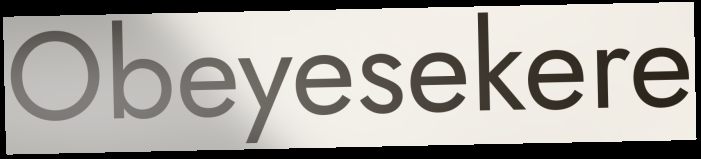
Obeyesekere